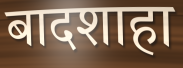
बादशाहा